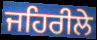
ਜਹਿਰੀਲੇ